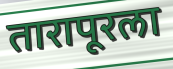
तारापूरला